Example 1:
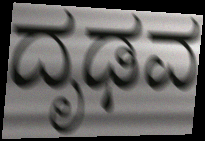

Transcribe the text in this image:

ದೃಢವ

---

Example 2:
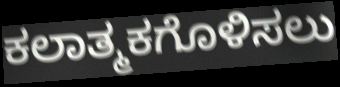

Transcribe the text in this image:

ಕಲಾತ್ಮಕಗೊಳಿಸಲು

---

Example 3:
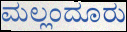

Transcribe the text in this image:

ಮಲ್ಲಂದೂರು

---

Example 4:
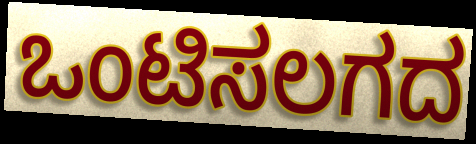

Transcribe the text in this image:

ಒಂಟಿಸಲಗದ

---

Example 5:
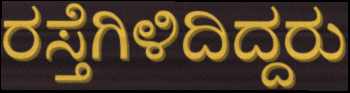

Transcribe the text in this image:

ರಸ್ತೆಗಿಳಿದಿದ್ದರು